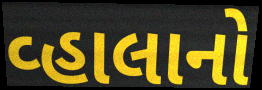
વ્હાલાનો